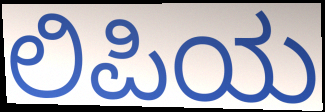
ಲಿಪಿಯ